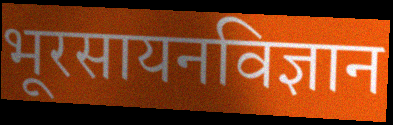
भूरसायनविज्ञान